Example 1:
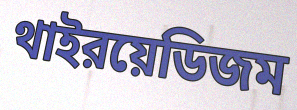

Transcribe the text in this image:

থাইরয়েডিজম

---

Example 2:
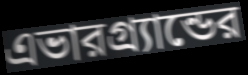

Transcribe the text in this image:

এভারগ্র্যান্ডের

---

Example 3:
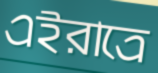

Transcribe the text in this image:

এইরাত্রে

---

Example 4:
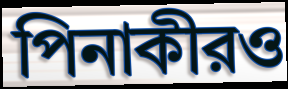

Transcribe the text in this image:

পিনাকীরও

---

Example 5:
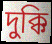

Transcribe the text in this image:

দুক্কি